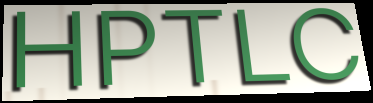
HPTLC